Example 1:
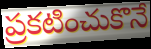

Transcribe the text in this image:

ప్రకటించుకొనే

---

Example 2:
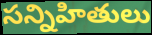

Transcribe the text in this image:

సన్నిహితులు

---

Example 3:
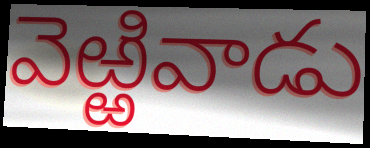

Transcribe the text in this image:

వెఱ్ఱివాడు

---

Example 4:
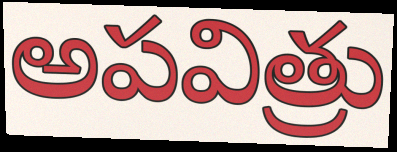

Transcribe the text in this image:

అపవిత్రు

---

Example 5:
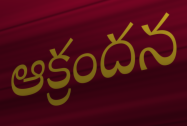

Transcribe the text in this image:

ఆక్రందన